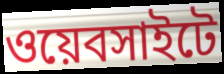
ওয়েবসাইটে